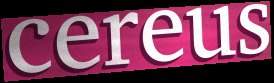
cereus